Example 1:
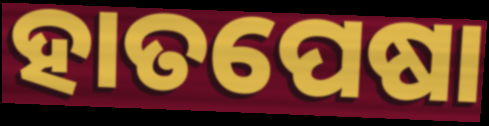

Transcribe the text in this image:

ହାତପେଷା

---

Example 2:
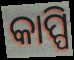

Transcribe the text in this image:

କାପ୍ପି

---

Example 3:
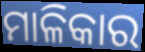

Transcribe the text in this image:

ମାଳିକାର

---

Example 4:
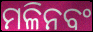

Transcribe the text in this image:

ମଳିନବଂ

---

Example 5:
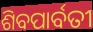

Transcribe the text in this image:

ଶିବପାର୍ବତୀ